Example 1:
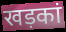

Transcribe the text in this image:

खड़कां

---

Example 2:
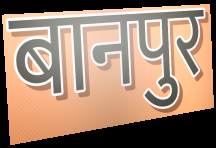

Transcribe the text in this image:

बानपुर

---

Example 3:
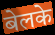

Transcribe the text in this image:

बेलके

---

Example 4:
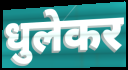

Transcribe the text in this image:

धुलेकर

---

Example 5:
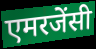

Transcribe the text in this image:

एमरजेंसी